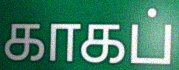
காகப்